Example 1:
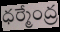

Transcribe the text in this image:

ధర్మేంద్ర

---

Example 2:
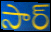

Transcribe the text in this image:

సార్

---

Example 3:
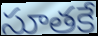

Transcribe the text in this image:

సూతకే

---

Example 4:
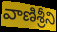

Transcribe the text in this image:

వాణిశ్రీని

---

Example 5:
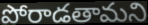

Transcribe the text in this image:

పోరాడతామని